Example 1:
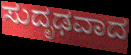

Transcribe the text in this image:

ಸುದೃಢವಾದ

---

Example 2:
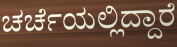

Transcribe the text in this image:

ಚರ್ಚೆಯಲ್ಲಿದ್ದಾರೆ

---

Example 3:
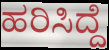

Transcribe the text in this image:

ಹರಿಸಿದ್ದೆ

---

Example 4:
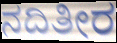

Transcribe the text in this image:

ನದಿತೀರ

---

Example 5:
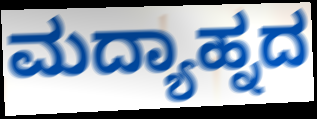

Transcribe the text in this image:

ಮದ್ಯಾಹ್ನದ